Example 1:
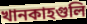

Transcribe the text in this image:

খানকাহগুলি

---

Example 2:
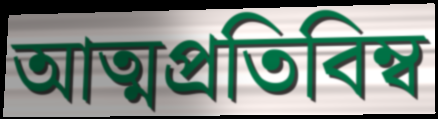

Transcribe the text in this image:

আত্মপ্রতিবিম্ব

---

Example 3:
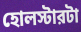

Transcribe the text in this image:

হোলস্টারটা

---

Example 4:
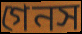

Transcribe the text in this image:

গেনস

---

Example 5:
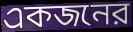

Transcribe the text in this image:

একজনের